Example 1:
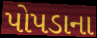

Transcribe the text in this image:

પોપડાના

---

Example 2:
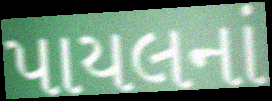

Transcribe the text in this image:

પાયલનાં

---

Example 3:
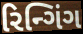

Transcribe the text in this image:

રિન્ગિંગ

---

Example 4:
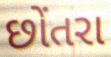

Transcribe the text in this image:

છોંતરા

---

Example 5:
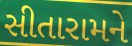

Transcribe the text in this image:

સીતારામને